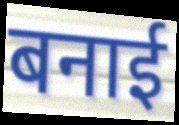
बनाई